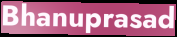
Bhanuprasad